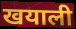
खयाली